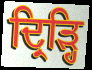
ਦ੍ਰਿੜ੍ਹਿ